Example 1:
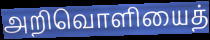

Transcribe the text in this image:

அறிவொளியைத்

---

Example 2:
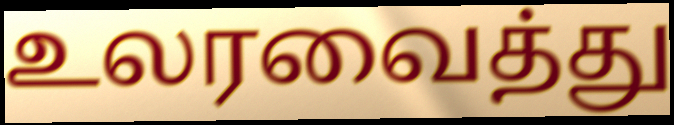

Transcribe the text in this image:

உலரவைத்து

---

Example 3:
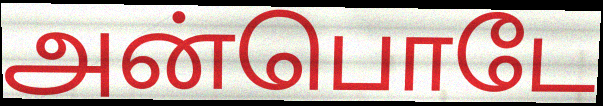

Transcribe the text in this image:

அன்பொடே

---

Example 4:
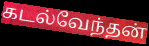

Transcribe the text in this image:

கடல்வேந்தன்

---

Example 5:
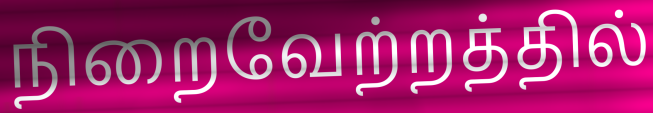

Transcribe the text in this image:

நிறைவேற்றத்தில்